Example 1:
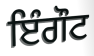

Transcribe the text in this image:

ਇੰਗੌਟ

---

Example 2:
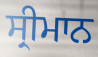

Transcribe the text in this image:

ਸ੍ਰੀਮਾਨ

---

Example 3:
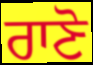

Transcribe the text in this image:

ਰਾਣੋ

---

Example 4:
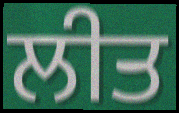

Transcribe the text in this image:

ਲੀਤ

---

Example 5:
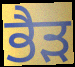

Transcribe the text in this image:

ਭੈੜ